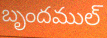
బృందముల్